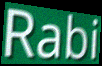
Rabi